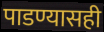
पाडण्यासही